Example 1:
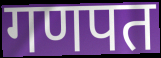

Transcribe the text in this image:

गणपत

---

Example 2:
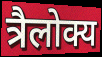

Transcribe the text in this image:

त्रैलोक्य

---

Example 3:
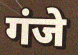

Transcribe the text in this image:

गंजे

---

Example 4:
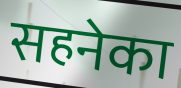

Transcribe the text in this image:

सहनेका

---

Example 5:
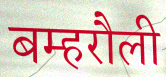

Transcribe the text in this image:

बम्हरौली